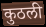
कुठली